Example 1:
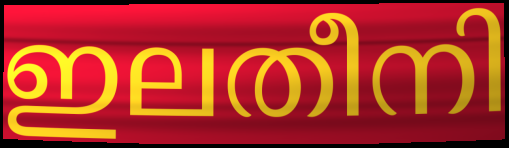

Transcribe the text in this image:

ഇലതീനി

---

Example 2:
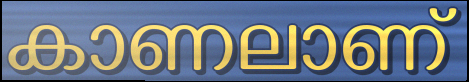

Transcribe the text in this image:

കാണലാണ്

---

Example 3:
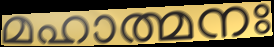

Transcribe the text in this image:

മഹാത്മനഃ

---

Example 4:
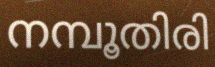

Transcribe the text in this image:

നമ്പൂതിരി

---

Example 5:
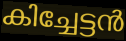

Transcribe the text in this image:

കിച്ചേട്ടൻ